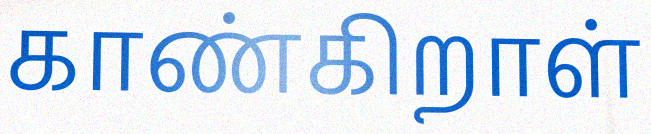
காண்கிறாள்